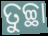
ତୁଚ୍ଛା